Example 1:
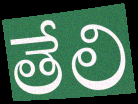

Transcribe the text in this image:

తేలి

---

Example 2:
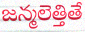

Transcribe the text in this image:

జన్మలెత్తితే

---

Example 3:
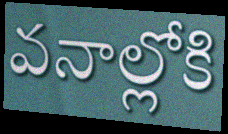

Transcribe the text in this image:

వనాల్లోకి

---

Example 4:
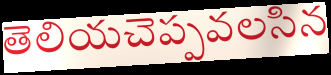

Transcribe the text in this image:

తెలియచెప్పవలసిన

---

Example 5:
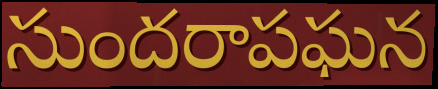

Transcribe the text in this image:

సుందరాపఘన